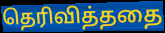
தெரிவித்ததை